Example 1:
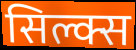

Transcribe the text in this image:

सिल्क्स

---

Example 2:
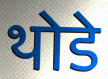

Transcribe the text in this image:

थोडे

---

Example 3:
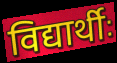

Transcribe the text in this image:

विद्यार्थीः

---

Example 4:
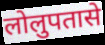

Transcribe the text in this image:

लोलुपतासे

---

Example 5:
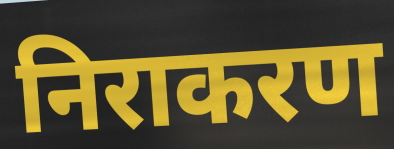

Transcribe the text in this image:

निराकरण